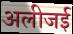
अलीजई